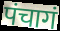
पंचागं